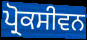
ਪ੍ਰੋਕਸੀਵਨ